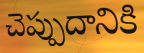
చెప్పుదానికి